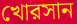
খোরসান